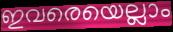
ഇവരെയെല്ലാം